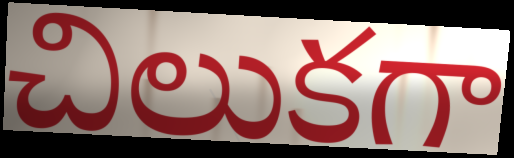
చిలుకగా